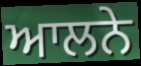
ਆਲਨੇ